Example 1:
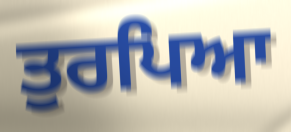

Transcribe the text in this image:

ਤੁਰਪਿਆ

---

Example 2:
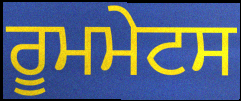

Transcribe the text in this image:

ਰੂਮਮੇਟਸ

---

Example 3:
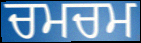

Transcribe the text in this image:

ਚਮਚਮ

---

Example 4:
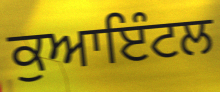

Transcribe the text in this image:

ਕੁਆਇੰਟਲ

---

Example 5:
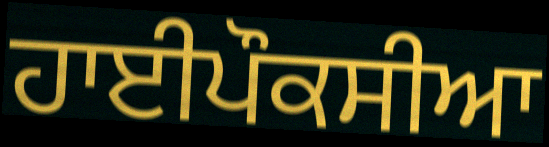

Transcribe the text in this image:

ਹਾਈਪੌਕਸੀਆ